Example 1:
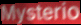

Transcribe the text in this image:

Mysterio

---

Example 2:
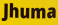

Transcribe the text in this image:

Jhuma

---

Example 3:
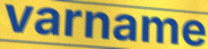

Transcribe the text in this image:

varname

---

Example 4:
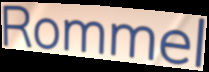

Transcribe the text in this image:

Rommel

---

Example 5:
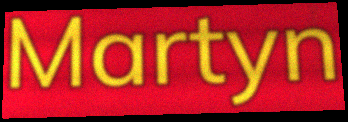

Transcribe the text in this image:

Martyn